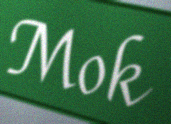
Mok